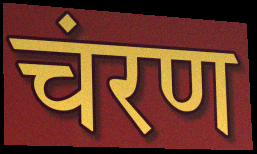
चंरण